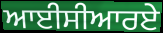
ਆਈਸੀਆਰਏ